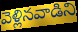
వెళ్లినవాడిని